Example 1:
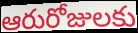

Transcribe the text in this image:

ఆరురోజులకు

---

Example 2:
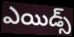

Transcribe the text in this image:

ఎయిడ్స్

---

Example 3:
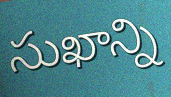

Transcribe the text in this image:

సుఖాన్ని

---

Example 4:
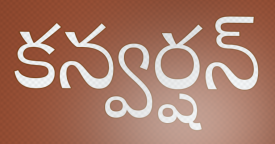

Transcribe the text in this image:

కన్వర్షన్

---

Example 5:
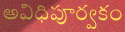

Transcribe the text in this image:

అవిధిపూర్వకం